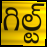
గిల్ట్